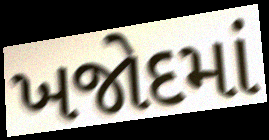
ખજોદમાં